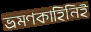
ভ্রমণকাহিনিই